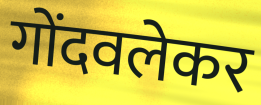
गोंदवलेकर